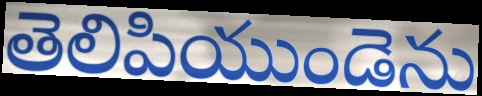
తెలిపియుండెను